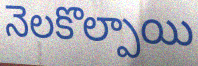
నెలకొల్పాయి